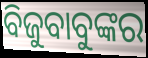
ବିଜୁବାବୁଙ୍କର